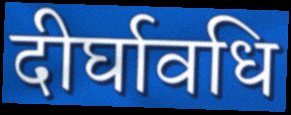
दीर्घावधि